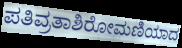
ಪತಿವ್ರತಾಶಿರೋಮಣಿಯಾದ